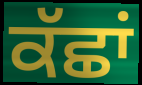
ਕੱਛਾਂ